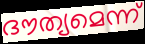
ദൗത്യമെന്ന്